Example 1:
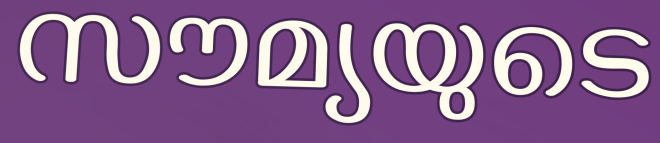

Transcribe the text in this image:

സൗമ്യയുടെ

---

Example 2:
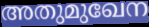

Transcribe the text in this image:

അതുമുഖേന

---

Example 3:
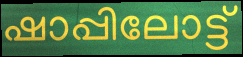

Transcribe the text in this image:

ഷാപ്പിലോട്ട്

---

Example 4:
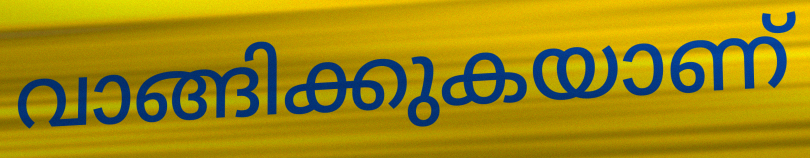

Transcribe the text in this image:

വാങ്ങിക്കുകയാണ്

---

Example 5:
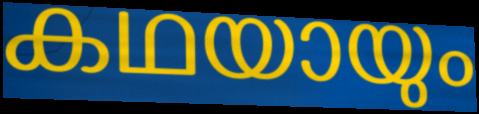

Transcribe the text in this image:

കഥയായും